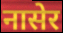
नासेर